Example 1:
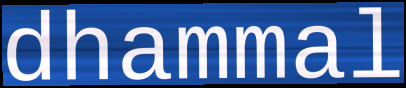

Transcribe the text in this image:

dhammal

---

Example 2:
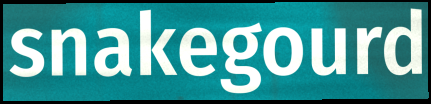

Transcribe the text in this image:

snakegourd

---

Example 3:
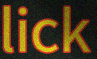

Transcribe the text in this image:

lick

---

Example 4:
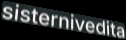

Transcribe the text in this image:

sisternivedita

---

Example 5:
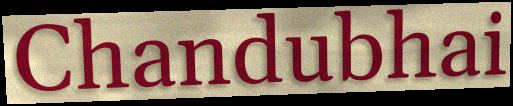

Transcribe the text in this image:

Chandubhai